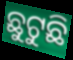
ଛୁଟୁଛି